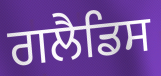
ਗਲੈਡਿਸ